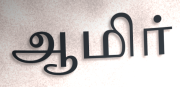
ஆமிர்